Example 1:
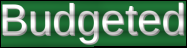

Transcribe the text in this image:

Budgeted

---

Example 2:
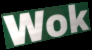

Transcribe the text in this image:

Wok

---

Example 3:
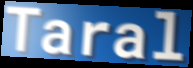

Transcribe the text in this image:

Taral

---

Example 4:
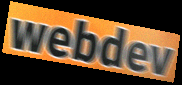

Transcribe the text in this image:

webdev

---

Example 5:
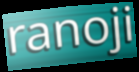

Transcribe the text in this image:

ranoji